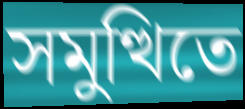
সমুত্থিতে